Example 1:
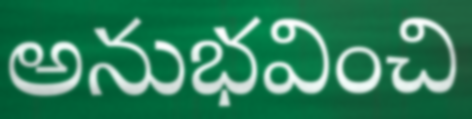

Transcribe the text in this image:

అనుభవించి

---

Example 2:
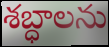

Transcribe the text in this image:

శబ్ధాలను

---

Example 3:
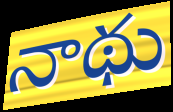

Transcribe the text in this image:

నాథు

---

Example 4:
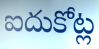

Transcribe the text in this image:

ఐదుకోట్ల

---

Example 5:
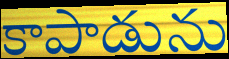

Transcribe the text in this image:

కాపాడును